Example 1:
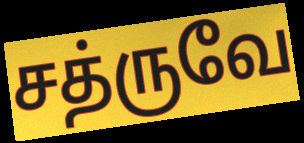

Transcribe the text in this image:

சத்ருவே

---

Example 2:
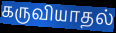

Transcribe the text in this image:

கருவியாதல்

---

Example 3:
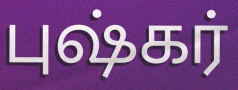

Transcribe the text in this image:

புஷ்கர்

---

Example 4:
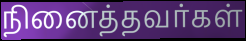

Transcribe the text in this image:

நினைத்தவர்கள்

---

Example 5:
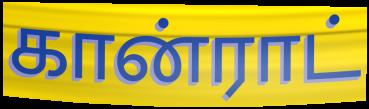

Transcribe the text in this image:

கான்ராட்